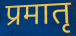
प्रमातृ